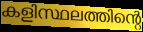
കളിസ്ഥലത്തിന്റെ